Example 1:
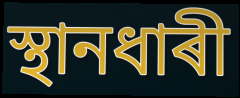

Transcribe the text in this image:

স্থানধাৰী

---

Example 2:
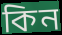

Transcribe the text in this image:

কিন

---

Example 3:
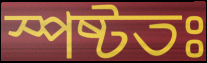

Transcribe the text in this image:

স্পষ্টতঃ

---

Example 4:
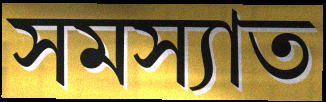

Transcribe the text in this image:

সমস্যাত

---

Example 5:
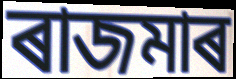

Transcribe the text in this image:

ৰাজমাৰ